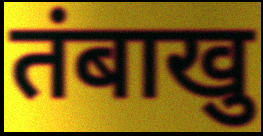
तंबाखु